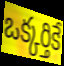
ఒక్కర్తికే